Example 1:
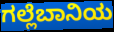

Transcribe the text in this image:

ಗಲ್ಲೆಬಾನಿಯ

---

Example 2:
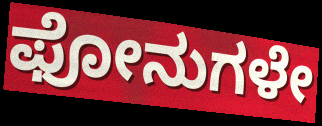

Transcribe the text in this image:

ಫೋನುಗಳೇ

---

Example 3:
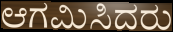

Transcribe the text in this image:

ಆಗಮಿಸಿದರು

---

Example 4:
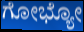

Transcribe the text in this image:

ಗೋಭ್ಯೋ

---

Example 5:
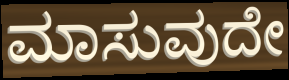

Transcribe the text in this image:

ಮಾಸುವುದೇ